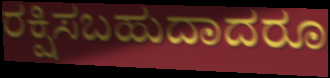
ರಕ್ಷಿಸಬಹುದಾದರೂ